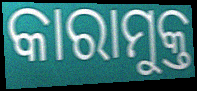
କାରାମୁକ୍ତ